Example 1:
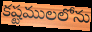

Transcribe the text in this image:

కష్టములలోను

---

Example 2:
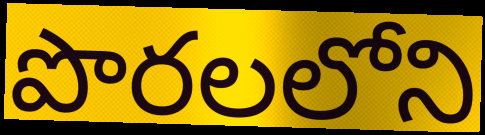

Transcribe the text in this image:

పొరలలోని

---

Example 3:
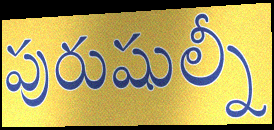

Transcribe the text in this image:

పురుషుల్నీ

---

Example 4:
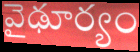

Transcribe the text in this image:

వైఢూర్యం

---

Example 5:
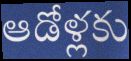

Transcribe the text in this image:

ఆడోళ్లకు